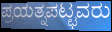
ಪ್ರಯತ್ನಪಟ್ಟವರು